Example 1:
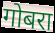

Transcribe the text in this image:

गोबरा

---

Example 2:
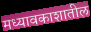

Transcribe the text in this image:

मध्यावकाशातील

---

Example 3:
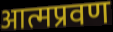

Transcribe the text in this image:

आत्मप्रवण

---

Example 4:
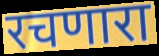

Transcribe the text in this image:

रचणारा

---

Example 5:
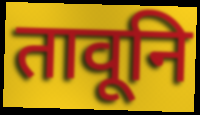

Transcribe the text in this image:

तावूनि